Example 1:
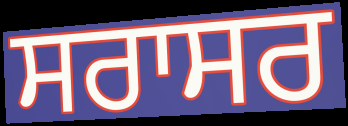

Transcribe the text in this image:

ਸਰਾਸਰ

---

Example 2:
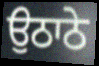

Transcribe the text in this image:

ਉਠਾਠੇ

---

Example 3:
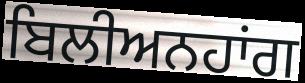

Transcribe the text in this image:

ਬਿਲੀਅਨਹਾਂਗ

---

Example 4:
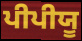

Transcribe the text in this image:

ਪੀਪੀਯੂ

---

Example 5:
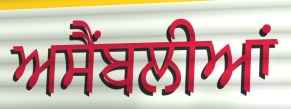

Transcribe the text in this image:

ਅਸੈਂਬਲੀਆਂ